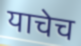
याचेच